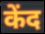
केंद